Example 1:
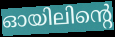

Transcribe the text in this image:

ഓയിലിന്റെ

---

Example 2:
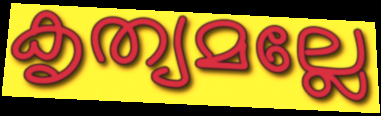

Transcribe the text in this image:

കൃത്യമല്ലേ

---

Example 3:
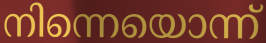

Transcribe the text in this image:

നിന്നെയൊന്ന്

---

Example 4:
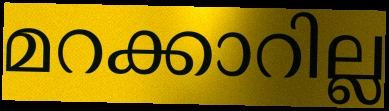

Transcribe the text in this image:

മറക്കാറില്ല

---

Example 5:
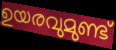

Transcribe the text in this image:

ഉയരവുമുണ്ട്